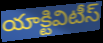
యాక్టివిటీస్